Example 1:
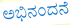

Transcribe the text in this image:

ಅಭಿನಂದನೆ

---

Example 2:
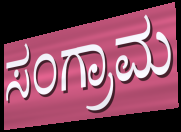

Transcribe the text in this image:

ಸಂಗ್ರಾಮ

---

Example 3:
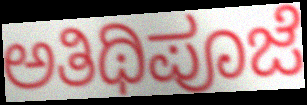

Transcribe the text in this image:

ಅತಿಥಿಪೂಜೆ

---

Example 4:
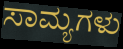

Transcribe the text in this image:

ಸಾಮ್ಯಗಳು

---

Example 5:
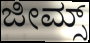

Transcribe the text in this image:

ಜೀಮ್ಸ್